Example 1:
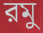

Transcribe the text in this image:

রমু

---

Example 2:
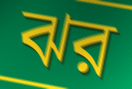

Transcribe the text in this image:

ঝর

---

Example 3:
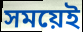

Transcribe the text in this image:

সময়েই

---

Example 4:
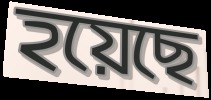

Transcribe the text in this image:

হয়েছে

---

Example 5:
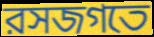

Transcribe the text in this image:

রসজগতে